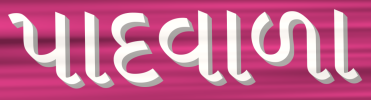
પાદવાળા